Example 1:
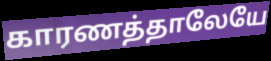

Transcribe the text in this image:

காரணத்தாலேயே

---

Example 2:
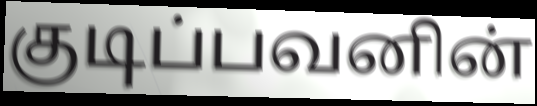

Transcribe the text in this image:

குடிப்பவனின்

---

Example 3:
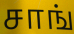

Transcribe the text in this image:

சாங்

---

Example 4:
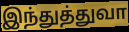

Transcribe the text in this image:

இந்துத்துவா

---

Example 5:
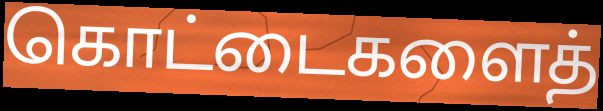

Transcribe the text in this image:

கொட்டைகளைத்